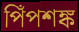
পিঁপশঙ্ক